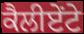
ਕੈਲੀਏਂਟੇ